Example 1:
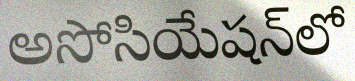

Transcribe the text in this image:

అసోసియేషన్‌లో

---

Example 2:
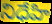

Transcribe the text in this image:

నిధేహి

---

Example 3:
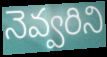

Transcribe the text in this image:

నెవ్వరిని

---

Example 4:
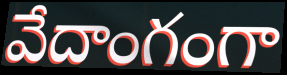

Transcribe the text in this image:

వేదాంగంగా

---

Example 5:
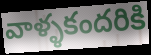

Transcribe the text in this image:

వాళ్ళకందరికి